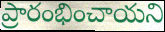
ప్రారంభించాయని